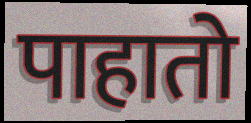
पाहातो